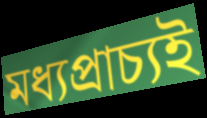
মধ্যপ্রাচ্যই